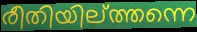
രീതിയില്ത്തന്നെ